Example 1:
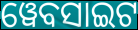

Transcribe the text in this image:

ୱେବସାଇଟ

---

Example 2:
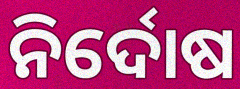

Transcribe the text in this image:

ନିର୍ଦୋଷ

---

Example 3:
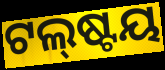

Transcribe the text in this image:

ଟଲ୍‌ଷ୍ଟୟ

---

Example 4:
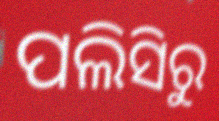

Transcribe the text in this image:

ପଲିସିରୁ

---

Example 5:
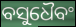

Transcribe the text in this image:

ବସୁଧୈବଂ